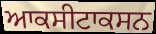
ਆਕਸੀਟਾਕਸਨ